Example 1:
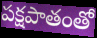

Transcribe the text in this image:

పక్షపాతంతో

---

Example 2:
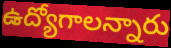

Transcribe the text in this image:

ఉద్యోగాలన్నారు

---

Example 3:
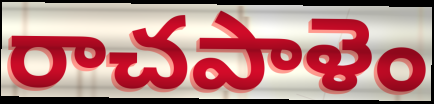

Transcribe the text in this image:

రాచపాళెం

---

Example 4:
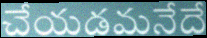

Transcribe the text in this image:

చేయడమనేదే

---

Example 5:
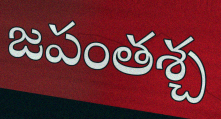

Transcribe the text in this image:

జపంతశ్చ